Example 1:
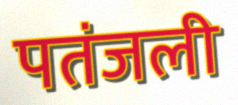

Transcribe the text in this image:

पतंजली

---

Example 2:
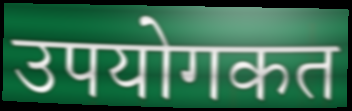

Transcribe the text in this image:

उपयोगकत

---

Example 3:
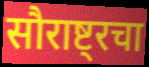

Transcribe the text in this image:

सौराष्ट्रचा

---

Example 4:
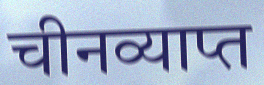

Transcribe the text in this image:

चीनव्याप्त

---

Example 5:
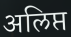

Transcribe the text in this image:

अलिप्त